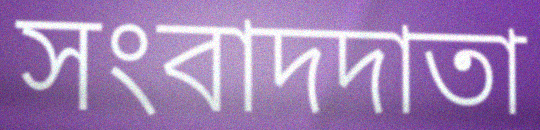
সংবাদদাতা